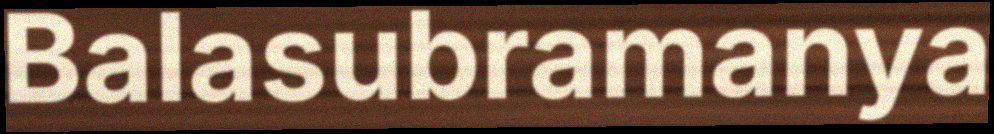
Balasubramanya